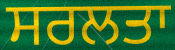
ਸਰਲਤਾ